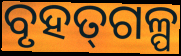
ବୃହତ୍‌ଗଳ୍ପ